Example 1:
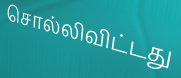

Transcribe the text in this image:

சொல்லிவிட்டது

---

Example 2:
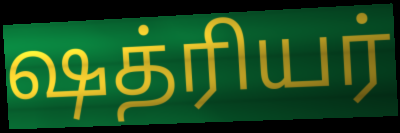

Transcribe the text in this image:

ஷத்ரியர்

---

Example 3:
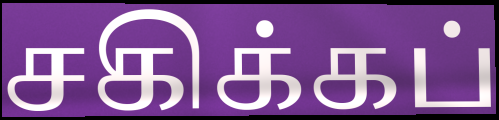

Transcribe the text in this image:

சகிக்கப்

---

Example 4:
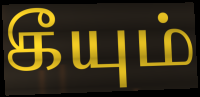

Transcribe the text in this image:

கீயும்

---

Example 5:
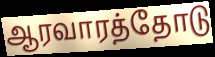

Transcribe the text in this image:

ஆரவாரத்தோடு